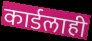
कार्डलाही